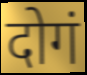
दोगं